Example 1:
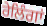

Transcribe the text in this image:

ਰੇਲਿੰਗਾਂ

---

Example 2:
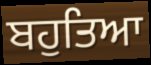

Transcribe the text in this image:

ਬਹੁਤਿਆ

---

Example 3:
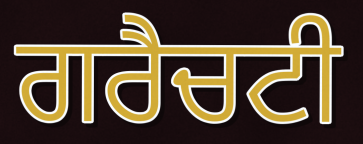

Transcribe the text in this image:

ਗਰੈਚਟੀ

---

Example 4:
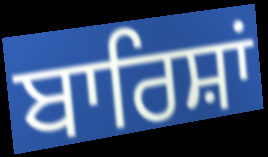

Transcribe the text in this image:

ਬਾਰਿਸ਼ਾਂ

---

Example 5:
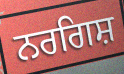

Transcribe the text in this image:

ਨਰਗਿਸ਼